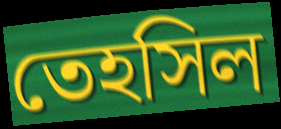
তেহসিল